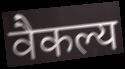
वैकल्य